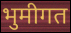
भुमीगत